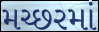
મચ્છરમાં